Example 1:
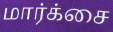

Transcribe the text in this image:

மார்க்சை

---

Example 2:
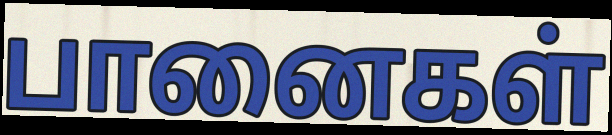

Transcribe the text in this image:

பானைகள்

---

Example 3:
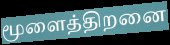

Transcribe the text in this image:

மூளைத்திறனை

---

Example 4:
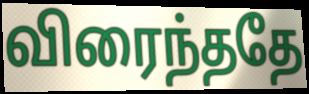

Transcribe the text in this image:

விரைந்ததே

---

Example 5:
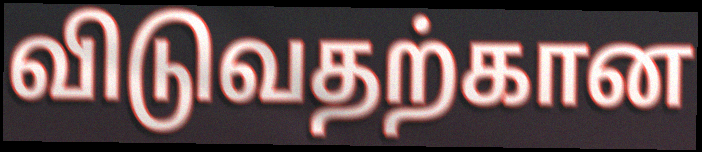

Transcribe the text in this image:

விடுவதற்கான